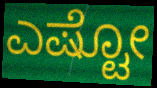
ಎಷ್ಟೋ